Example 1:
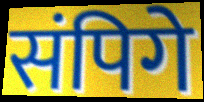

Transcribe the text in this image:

संपिगे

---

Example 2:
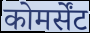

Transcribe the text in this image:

कोमर्सेंट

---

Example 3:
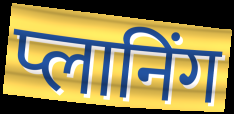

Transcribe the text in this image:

प्‍लानिंग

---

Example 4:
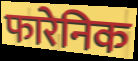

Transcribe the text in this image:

फारेनिक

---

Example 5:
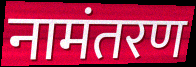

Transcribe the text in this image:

नामंतरण